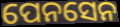
ପେନସେନ